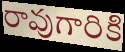
రావుగారికి